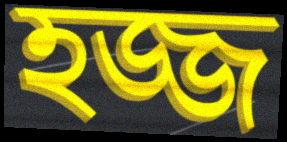
হজ্জ